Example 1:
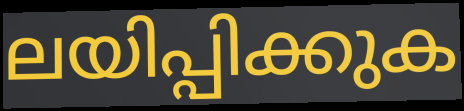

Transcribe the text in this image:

ലയിപ്പിക്കുക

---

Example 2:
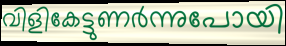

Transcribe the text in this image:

വിളികേട്ടുണർന്നുപോയി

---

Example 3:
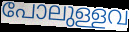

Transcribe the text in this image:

പോലുള്ളവ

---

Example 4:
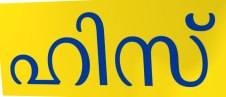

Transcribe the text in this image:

ഹിസ്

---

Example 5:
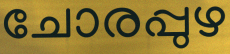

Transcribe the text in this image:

ചോരപ്പുഴ